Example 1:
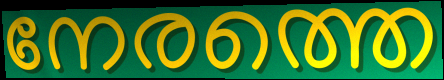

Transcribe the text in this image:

നേരത്തെ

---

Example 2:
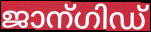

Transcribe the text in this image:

ജാന്ഗിഡ്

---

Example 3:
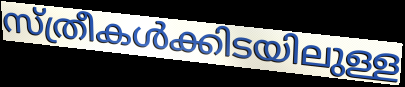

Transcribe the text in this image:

സ്ത്രീകൾക്കിടയിലുള്ള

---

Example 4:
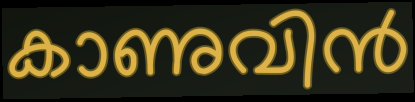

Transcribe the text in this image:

കാണുവിൻ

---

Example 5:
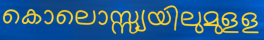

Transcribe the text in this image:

കൊലൊസ്സ്യയിലുമുളള